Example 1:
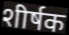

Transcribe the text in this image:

शीर्षक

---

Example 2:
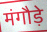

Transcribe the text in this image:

मंगौड़े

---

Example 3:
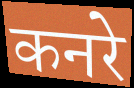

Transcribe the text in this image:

कनरे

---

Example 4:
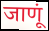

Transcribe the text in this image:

जाणूं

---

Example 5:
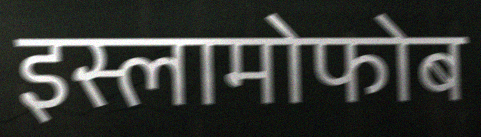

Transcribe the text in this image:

इस्लामोफोब